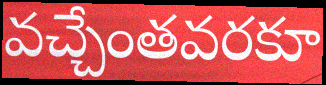
వచ్చేంతవరకూ